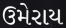
ઉમેરાય